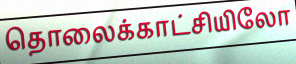
தொலைக்காட்சியிலோ